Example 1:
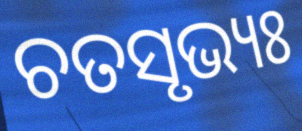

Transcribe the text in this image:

ଚତସୃଭ୍ୟଃ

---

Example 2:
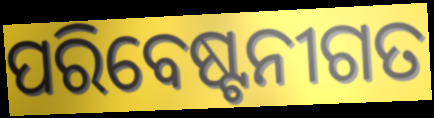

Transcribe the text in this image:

ପରିବେଷ୍ଟନୀଗତ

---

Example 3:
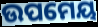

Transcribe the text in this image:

ଉପମେୟ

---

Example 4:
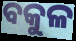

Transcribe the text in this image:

ବକୁଳ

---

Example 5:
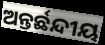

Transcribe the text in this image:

ଅନ୍ତର୍ଛନ୍ଦୀୟ